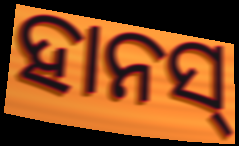
ହାନସ୍